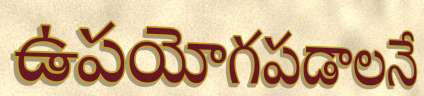
ఉపయోగపడాలనే